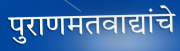
पुराणमतवाद्यांचे